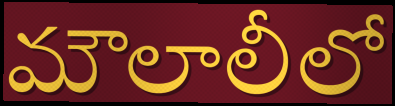
మౌలాలీలో